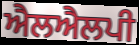
ਐਲਐਲਪੀ